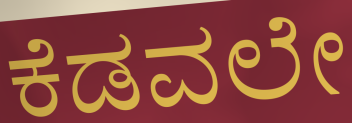
ಕೆಡವಲೇ